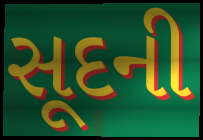
સૂદની